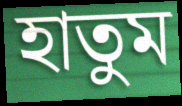
হাতুম